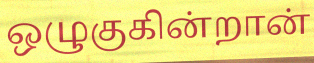
ஒழுகுகின்றான்